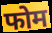
फोम